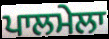
ਪਾਲਮੇਲਾ